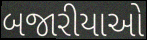
બજારીયાઓ